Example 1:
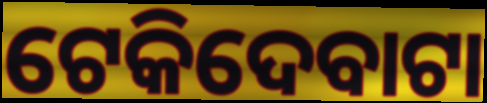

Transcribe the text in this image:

ଟେକିଦେବାଟା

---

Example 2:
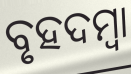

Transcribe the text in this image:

ବୃହଦମ୍ବା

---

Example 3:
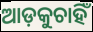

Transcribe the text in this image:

ଆଡ଼କୁଚାହିଁ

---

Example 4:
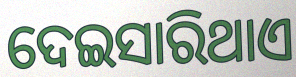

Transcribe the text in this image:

ଦେଇସାରିଥାଏ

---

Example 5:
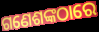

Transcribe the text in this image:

ଗଣେଶଙ୍କଠାରେ